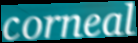
corneal